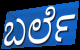
ಬರ್ಲೆ